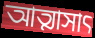
আত্মাসাৎ